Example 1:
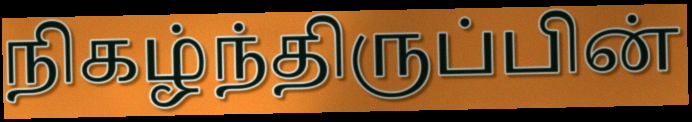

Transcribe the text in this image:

நிகழ்ந்திருப்பின்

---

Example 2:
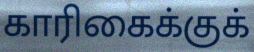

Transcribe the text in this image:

காரிகைக்குக்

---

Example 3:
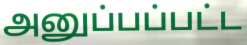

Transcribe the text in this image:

அனுப்பப்பட்ட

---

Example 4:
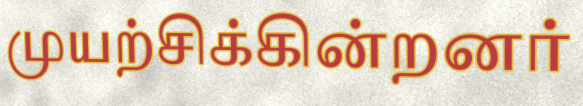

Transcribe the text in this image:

முயற்சிக்கின்றனர்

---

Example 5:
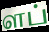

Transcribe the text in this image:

ளப்